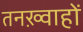
तनख़्वाहों